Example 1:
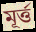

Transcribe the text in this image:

মূর্ত্ত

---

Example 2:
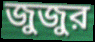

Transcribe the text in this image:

জুজুর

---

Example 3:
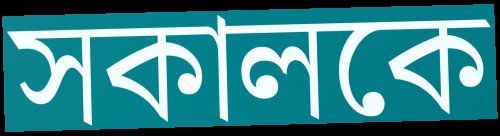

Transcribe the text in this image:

সকালকে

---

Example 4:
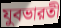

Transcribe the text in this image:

যুবভারতী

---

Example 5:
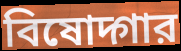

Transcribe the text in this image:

বিষোদ্গার